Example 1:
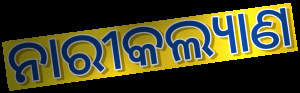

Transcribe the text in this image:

ନାରୀକଲ୍ୟାଣ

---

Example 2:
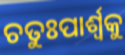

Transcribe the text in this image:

ଚତୁଃପାର୍ଶ୍ୱକୁ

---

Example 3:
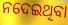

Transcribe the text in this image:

ନଦେଇଥିବା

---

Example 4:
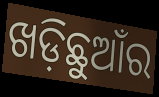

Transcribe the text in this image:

ଖଡ଼ିଛୁଆଁର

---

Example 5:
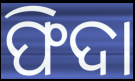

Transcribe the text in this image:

ଫିଦା